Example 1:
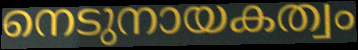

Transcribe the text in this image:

നെടുനായകത്വം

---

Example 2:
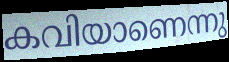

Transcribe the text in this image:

കവിയാണെന്നു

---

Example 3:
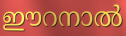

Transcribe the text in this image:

ഈറനാൽ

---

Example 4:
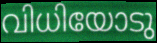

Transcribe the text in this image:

വിധിയോടു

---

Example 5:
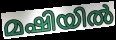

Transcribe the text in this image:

മഷിയിൽ